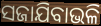
ସଜାଯିବାଭଳି